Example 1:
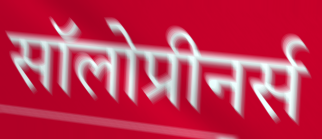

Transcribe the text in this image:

सॉलोप्रीनर्स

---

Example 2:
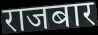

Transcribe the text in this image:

राजबार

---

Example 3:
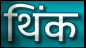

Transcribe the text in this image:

थिंक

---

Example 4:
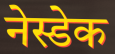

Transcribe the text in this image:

नेस्डेक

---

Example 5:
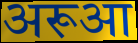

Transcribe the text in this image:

अरूआ